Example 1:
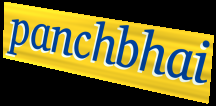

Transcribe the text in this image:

panchbhai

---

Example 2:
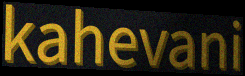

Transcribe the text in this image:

kahevani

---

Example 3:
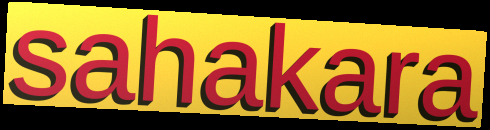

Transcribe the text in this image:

sahakara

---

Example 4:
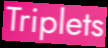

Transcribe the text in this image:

Triplets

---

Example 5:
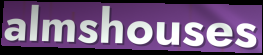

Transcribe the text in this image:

almshouses